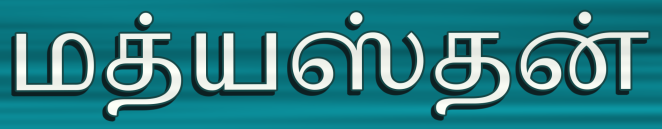
மத்யஸ்தன்